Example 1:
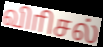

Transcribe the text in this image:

விரிசல்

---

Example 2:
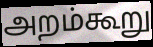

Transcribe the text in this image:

அறம்கூறு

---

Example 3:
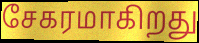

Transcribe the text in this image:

சேகரமாகிறது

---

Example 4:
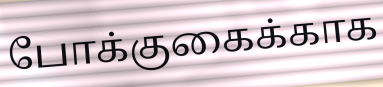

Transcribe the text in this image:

போக்குகைக்காக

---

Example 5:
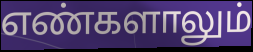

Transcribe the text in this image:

எண்களாலும்